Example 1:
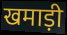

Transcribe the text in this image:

खमाड़ी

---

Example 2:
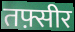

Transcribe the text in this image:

तफ़्सीर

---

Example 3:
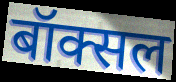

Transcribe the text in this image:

बॉक्सल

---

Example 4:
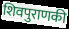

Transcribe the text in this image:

शिवपुराणकी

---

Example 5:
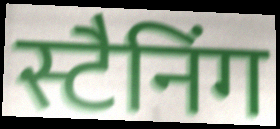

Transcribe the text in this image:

स्टैनिंग